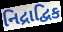
નિદ્રાદ્વિક